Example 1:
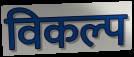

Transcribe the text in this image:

विकल्प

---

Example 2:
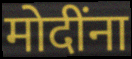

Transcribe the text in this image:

मोदींना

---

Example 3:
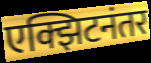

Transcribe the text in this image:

एक्झिटनंतर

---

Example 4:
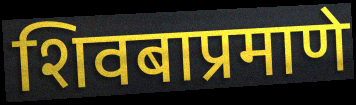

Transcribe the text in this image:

शिवबाप्रमाणे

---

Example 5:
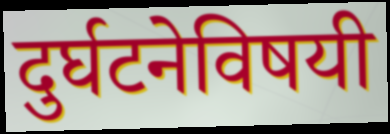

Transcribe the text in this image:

दुर्घटनेविषयी